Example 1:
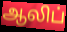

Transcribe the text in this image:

ஆலிப்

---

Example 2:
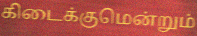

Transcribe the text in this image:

கிடைக்குமென்றும்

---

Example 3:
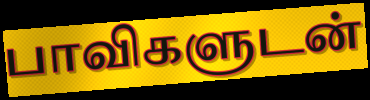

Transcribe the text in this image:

பாவிகளுடன்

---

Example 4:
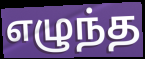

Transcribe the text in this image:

எழுந்த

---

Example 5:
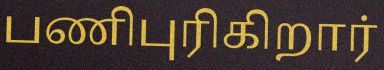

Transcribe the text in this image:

பணிபுரிகிறார்